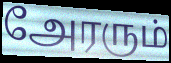
அேரரும்